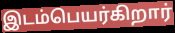
இடம்பெயர்கிறார்